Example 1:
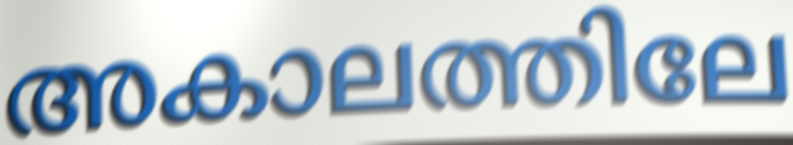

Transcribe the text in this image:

അകാലത്തിലേ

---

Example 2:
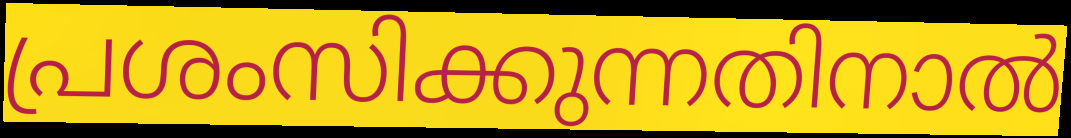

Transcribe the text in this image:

പ്രശംസിക്കുന്നതിനാൽ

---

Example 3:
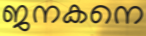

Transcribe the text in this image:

ജനകനെ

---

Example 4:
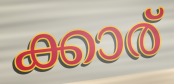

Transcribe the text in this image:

ക്കാര്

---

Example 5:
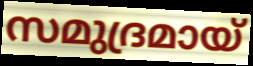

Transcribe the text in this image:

സമുദ്രമായ്